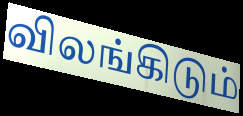
விலங்கிடும்